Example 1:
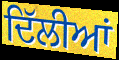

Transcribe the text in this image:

ਦਿੱਲੀਆਂ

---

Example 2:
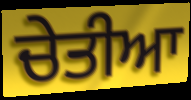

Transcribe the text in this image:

ਚੇਤੀਆ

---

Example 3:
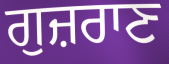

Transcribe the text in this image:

ਗੁਜ਼ਰਾਣ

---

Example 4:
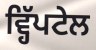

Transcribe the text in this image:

ਵ੍ਹਿੱਪਟੇਲ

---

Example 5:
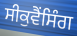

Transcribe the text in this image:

ਸੀਕੁਵੈਂਸਿੰਗ